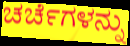
ಚರ್ಚೆಗಳನ್ನು